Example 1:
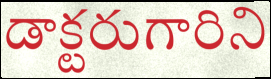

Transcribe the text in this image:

డాక్టరుగారిని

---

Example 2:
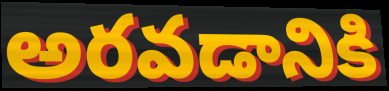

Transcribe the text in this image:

అరవడానికి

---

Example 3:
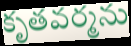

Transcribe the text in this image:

కృతవర్మను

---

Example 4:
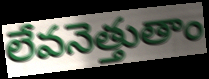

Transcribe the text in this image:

లేవనెత్తుతాం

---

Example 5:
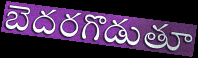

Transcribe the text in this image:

బెదరగొడుతూ